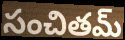
సంచితమ్